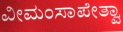
ವೀಮಂಸಾಪೇತ್ವಾ